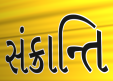
સંક્રાન્તિ